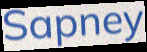
Sapney